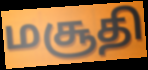
மசூதி